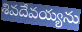
శివదేవయ్యను